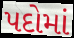
પદોમાં